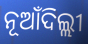
ନୂଆଁଦିଲ୍ଲୀ